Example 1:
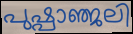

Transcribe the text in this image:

പുഷ്പാഞ്ജലി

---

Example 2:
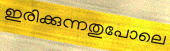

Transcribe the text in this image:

ഇരിക്കുന്നതുപോലെ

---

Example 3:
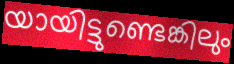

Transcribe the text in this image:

യായിട്ടുണ്ടെങ്കിലും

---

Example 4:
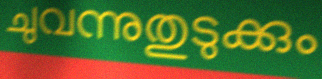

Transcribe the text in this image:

ചുവന്നുതുടുക്കും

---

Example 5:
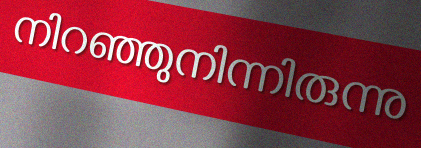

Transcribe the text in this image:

നിറഞ്ഞുനിന്നിരുന്നു